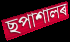
ছপাশালৰ